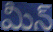
మీన్